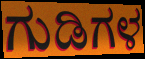
ಗುಡಿಗಳ